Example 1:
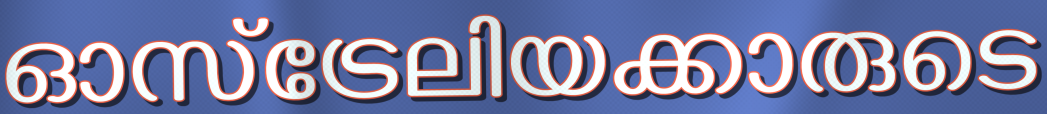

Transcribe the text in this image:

ഓസ്ട്രേലിയക്കാരുടെ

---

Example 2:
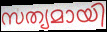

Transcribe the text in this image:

സത്യമായി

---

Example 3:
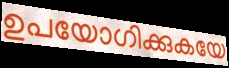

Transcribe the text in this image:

ഉപയോഗിക്കുകയേ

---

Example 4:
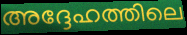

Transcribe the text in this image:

അദ്ദേഹത്തിലെ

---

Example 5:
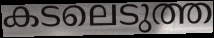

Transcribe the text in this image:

കടലെടുത്ത